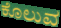
ಕೊಲುವ